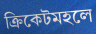
ক্রিকেটমহলে